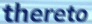
thereto